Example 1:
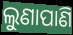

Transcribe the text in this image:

ଲୁଣାପାଣି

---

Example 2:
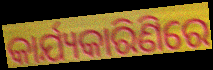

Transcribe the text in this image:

କାର୍ଯ୍ୟକାରିଣିରେ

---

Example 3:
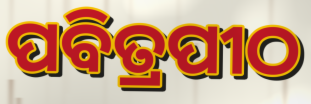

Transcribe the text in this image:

ପବିତ୍ରପୀଠ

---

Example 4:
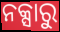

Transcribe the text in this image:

ନକ୍ସାରୁ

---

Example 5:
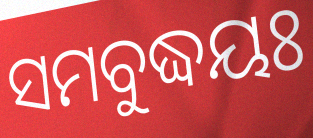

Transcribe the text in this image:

ସମବୁଦ୍ଧୟଃ